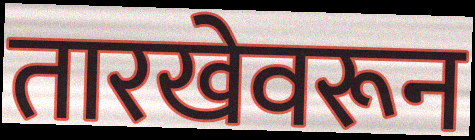
तारखेवरून